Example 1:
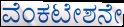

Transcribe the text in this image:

ವೆಂಕಟೇಶನೇ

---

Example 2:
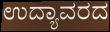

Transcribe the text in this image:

ಉದ್ಯಾವರದ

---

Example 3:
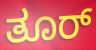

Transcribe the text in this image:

ತೂರ್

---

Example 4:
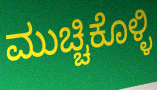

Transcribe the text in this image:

ಮುಚ್ಚಿಕೊಳ್ಳಿ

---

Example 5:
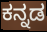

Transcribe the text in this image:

ಕನ್ನಡ